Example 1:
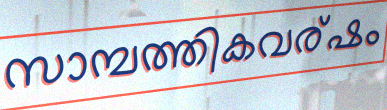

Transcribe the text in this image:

സാമ്പത്തികവര്ഷം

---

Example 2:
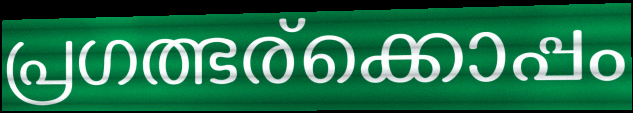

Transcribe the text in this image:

പ്രഗത്ഭര്ക്കൊപ്പം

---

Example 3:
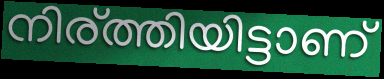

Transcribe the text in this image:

നിര്ത്തിയിട്ടാണ്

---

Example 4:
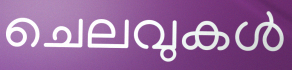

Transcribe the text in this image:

ചെലവുകൾ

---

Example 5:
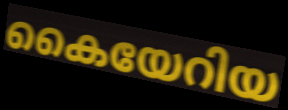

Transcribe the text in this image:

കൈയേറിയ